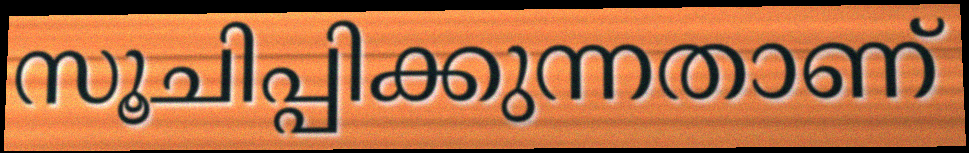
സൂചിപ്പിക്കുന്നതാണ്